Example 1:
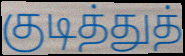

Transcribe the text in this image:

குடித்துத்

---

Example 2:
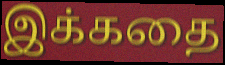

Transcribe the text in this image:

இக்கதை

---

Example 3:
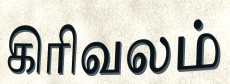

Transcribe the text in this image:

கிரிவலம்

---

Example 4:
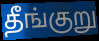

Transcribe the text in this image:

தீங்குறு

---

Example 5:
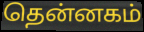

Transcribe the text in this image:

தென்னகம்